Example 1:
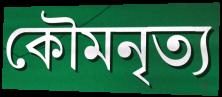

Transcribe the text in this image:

কৌমনৃত্য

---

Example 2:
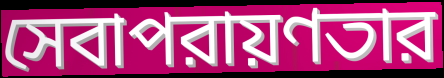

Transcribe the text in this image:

সেবাপরায়ণতার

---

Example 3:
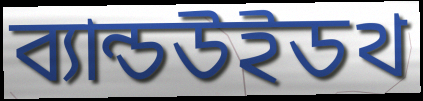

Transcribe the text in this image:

ব্যান্ডউইডথ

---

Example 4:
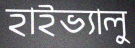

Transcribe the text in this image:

হাইভ্যালু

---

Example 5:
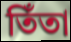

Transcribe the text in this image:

তিঁতা